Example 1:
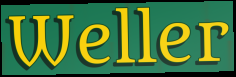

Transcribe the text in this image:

Weller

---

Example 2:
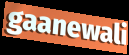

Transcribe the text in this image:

gaanewali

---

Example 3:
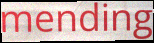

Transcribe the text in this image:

mending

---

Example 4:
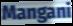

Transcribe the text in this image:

Mangani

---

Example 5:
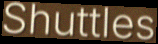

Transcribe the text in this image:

Shuttles